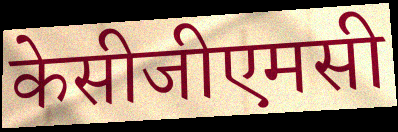
केसीजीएमसी